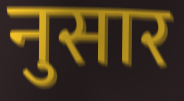
नुसार